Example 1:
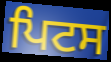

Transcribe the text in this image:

ਪਿਟਸ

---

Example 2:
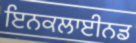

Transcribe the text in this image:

ਇਨਕਲਾਈਨਡ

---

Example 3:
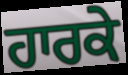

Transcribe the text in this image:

ਹਾਰਕੇ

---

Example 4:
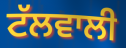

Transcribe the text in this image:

ਟੱਲਵਾਲੀ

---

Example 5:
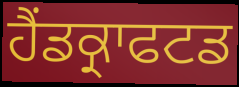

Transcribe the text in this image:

ਹੈਂਡਕ੍ਰਾਫਟਡ